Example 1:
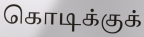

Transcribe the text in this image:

கொடிக்குக்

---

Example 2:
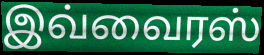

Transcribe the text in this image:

இவ்வைரஸ்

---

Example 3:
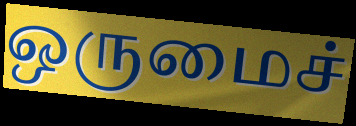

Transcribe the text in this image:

ஒருமைச்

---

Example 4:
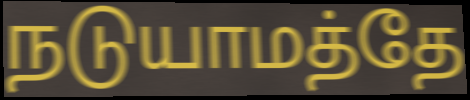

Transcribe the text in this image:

நடுயாமத்தே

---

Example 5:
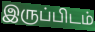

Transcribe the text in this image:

இருப்பிடம்